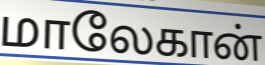
மாலேகான்